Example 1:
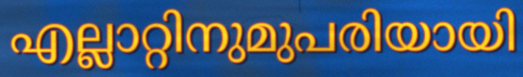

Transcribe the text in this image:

എല്ലാറ്റിനുമുപരിയായി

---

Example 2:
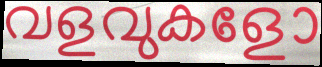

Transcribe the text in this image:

വളവുകളോ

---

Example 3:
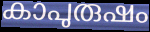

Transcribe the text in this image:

കാപുരുഷം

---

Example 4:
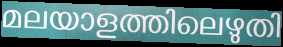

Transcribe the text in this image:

മലയാളത്തിലെഴുതി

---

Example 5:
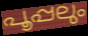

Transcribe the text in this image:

പൂപ്പലും